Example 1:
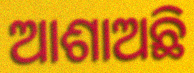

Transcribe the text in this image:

ଆଶାଅଛି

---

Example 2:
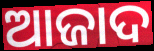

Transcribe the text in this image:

ଆଜାଦ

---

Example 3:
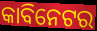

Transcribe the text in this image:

କାବିନେଟର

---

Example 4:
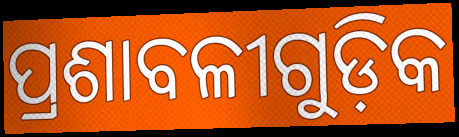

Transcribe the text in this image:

ପ୍ରଶାବଳୀଗୁଡ଼ିକ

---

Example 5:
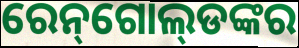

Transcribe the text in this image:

ରେନ୍‌ଗୋଲ୍‌ଡଙ୍କର